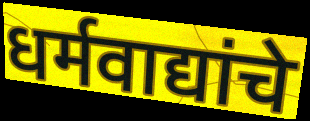
धर्मवाद्यांचे